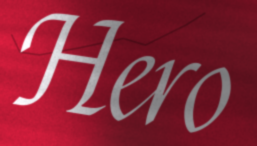
Hero